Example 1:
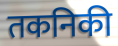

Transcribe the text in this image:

तकनिकी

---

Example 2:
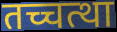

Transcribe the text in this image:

तच्चत्था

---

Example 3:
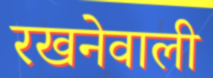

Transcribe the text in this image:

रखनेवाली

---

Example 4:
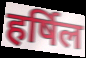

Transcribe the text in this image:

हर्षिल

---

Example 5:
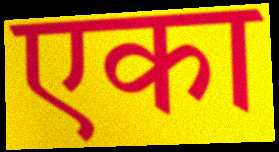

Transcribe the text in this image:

एका